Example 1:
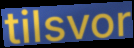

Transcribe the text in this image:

tilsvor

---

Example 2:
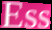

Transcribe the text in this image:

Ess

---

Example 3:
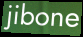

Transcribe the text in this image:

jibone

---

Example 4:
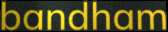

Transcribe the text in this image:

bandham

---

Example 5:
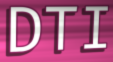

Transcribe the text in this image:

DTI